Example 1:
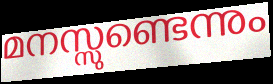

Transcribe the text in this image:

മനസ്സുണ്ടെന്നും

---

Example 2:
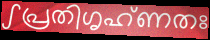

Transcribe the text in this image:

ഽപ്രതിഗൃഹ്ണതഃ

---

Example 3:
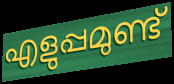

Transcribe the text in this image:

എളുപ്പമുണ്ട്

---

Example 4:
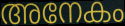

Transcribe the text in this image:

അനേകം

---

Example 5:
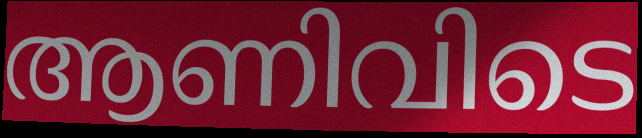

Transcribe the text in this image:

ആണിവിടെ